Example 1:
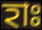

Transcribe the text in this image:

হাঃ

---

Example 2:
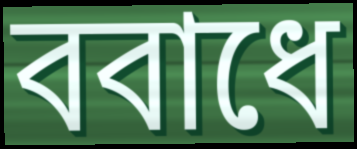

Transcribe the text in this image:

ববাধে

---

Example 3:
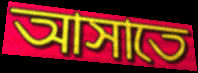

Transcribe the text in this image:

আসাতে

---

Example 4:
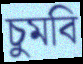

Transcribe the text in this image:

চুমবি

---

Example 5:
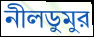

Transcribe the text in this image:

নীলডুমুর